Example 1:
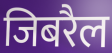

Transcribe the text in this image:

जिबरैल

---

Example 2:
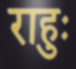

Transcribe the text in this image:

राहुः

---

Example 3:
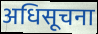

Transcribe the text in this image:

अधिसूचना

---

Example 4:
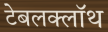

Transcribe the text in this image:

टेबलक्लॉथ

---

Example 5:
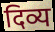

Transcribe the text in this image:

दिव्य